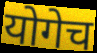
योगेच